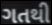
ગતથી